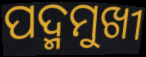
ପଦ୍ମମୁଖୀ